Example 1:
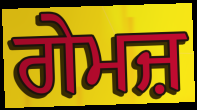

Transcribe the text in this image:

ਗੇਮਜ਼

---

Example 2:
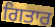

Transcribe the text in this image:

ਗਿਤਾਰ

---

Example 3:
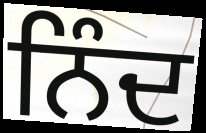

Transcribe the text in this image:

ਨਿੰਦ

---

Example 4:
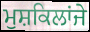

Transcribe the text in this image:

ਮੁਸ਼ਕਿਲਾਂਜੇ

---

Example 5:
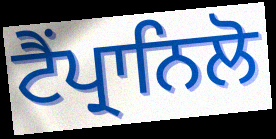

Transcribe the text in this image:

ਟੈਂਪ੍ਰਾਨਿਲੋ